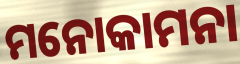
ମନୋକାମନା